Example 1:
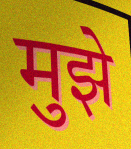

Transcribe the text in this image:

मुझे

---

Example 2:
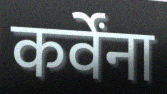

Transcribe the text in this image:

कर्वेंना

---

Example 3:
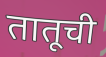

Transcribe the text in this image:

तातूची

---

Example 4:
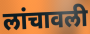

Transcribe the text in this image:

लांचावली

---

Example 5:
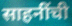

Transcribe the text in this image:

साहनींची